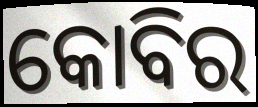
କୋବିର